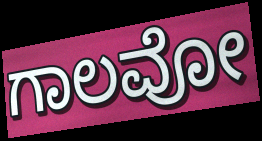
ಗಾಲವೋ